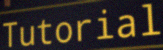
Tutorial